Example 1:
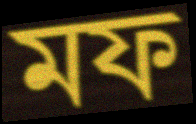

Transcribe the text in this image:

মফ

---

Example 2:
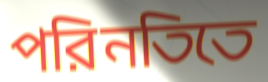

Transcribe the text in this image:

পরিনতিতে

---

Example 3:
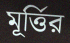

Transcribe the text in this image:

মূর্ত্তির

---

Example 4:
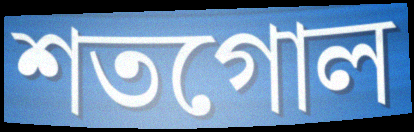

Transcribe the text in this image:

শতগোল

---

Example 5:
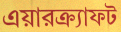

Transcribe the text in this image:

এয়ারক্র্যাফট